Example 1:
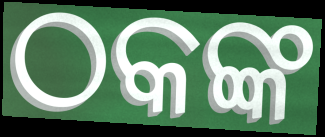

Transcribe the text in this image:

ଠକଙ୍କ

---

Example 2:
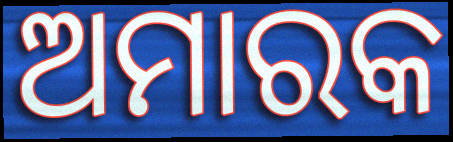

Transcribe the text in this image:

ଅମାରକ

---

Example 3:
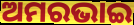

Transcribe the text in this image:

ଅମରଭାଇ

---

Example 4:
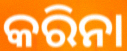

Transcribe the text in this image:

କରିନା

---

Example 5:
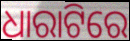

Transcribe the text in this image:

ଧାରାଟିରେ